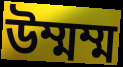
উম্মম্ম